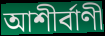
আশীর্বাণী